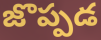
జొప్పడ